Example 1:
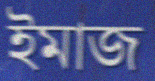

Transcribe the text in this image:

ইমাজ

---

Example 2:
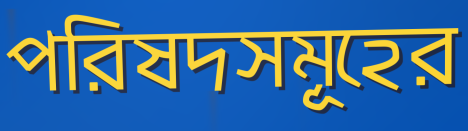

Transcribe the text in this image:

পরিষদসমূহের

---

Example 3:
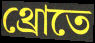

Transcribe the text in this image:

থ্রোতে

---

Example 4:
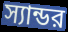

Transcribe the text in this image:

স্যান্ডর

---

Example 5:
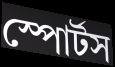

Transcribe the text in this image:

স্পোর্টস